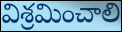
విశ్రమించాలి